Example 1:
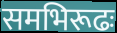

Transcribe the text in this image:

समभिरूढः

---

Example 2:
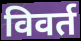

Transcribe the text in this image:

विवर्त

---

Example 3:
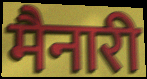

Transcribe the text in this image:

मैनारी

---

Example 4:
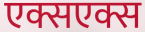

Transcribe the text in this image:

एक्सएक्स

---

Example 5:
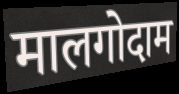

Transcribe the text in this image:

मालगोदाम